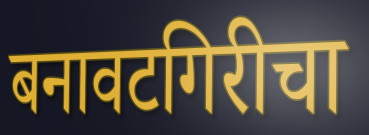
बनावटगिरीचा